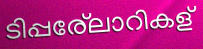
ടിപ്പര്ലോറികള്